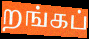
றங்கப்